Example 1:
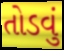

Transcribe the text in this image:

તોડવું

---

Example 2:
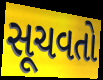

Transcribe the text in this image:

સૂચવતો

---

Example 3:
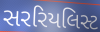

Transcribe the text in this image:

સરરિયલિસ્ટ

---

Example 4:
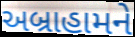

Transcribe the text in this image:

અબ્રાહામને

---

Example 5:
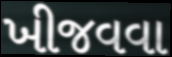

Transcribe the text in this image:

ખીજવવા